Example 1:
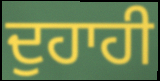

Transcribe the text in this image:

ਦੁਹਾਹੀ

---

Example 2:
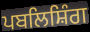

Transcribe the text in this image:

ਪਬਲਿਸ਼ਿੰਗ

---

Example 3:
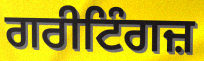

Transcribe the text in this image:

ਗਰੀਟਿੰਗਜ਼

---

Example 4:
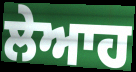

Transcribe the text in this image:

ਲੇਆਹ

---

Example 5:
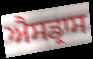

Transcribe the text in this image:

ਐਸਡ੍ਰਾਸ